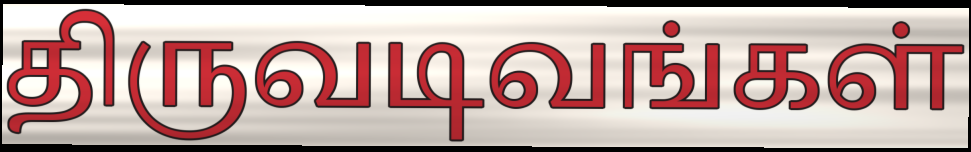
திருவடிவங்கள்